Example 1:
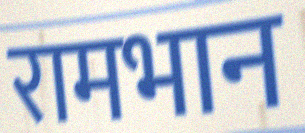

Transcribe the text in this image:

रामभान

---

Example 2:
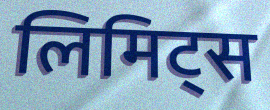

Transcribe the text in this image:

लिमिट्स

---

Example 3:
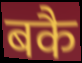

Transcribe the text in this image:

बकै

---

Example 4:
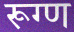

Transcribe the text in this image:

रूग्ण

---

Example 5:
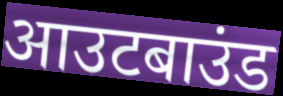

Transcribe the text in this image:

आउटबाउंड